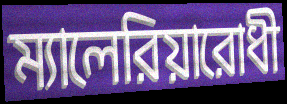
ম্যালেরিয়ারোধী